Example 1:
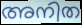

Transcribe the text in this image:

അനിത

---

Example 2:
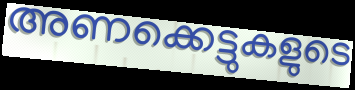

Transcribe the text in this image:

അണക്കെട്ടുകളുടെ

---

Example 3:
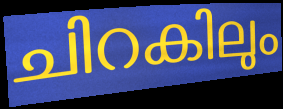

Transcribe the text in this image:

ചിറകിലും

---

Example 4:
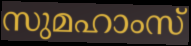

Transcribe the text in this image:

സുമഹാംസ്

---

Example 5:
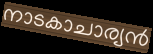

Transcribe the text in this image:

നാടകാചാര്യൻ